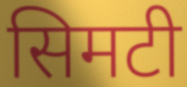
सिमटी